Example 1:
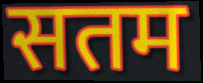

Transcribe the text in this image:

सतम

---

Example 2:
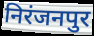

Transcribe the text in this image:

निरंजनपुर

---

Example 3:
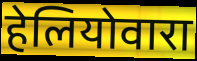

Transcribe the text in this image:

हेलियोवारा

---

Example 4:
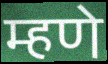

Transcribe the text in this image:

म्हणे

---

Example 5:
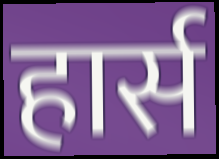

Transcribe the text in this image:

हार्स